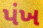
પંખ